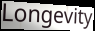
Longevity